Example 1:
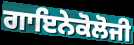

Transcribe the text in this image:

ਗਾਇਨੇਕੋਲੋਜੀ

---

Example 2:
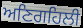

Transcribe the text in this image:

ਅਣਿਗਹਿਲੀ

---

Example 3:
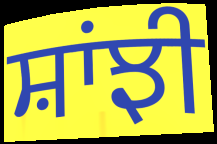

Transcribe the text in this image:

ਸ਼ਾਂਝੀ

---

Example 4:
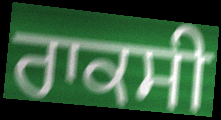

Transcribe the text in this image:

ਰਾਕਸੀ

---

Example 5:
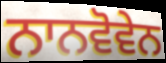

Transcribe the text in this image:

ਨਾਨਵੋਵੇਨ